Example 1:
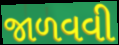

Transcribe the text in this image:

જાળવવી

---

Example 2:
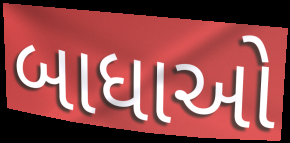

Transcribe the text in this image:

બાધાઓ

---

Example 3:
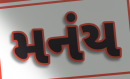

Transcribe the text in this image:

મનંય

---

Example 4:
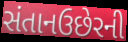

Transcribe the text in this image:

સંતાનઉછેરની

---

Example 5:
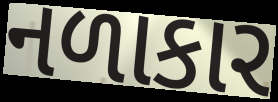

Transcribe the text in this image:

નળાકાર